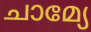
ചാമ്യേ